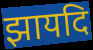
झायदि